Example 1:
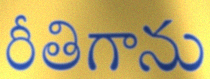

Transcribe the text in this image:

రీతిగాను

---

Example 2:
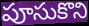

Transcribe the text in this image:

పూసుకొని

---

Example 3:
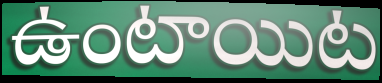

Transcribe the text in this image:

ఉంటాయిట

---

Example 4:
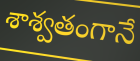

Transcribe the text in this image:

శాశ్వతంగానే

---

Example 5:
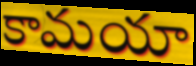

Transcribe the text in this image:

కామయా